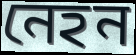
নেহন